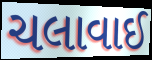
ચલાવાઈ